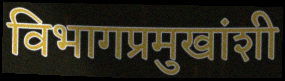
विभागप्रमुखांशी